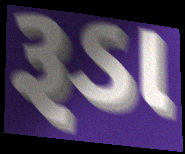
રૂડા